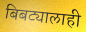
बिबट्यालाही